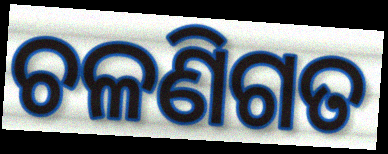
ଚଳଣିଗତ